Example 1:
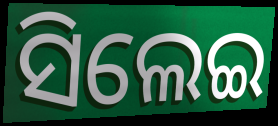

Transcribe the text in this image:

ସିଲେଇ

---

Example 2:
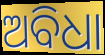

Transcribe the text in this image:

ଅବିଧା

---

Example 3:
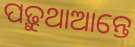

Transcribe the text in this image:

ପଢ଼ୁଥାଆନ୍ତେ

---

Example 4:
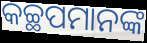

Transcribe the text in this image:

କଚ୍ଛପମାନଙ୍କ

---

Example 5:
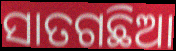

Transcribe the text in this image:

ସାତଗଛିଆ